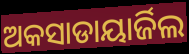
ଅକସାଡାୟାର୍ଜିଲ